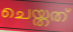
ചെയ്തത്